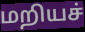
மறியச்